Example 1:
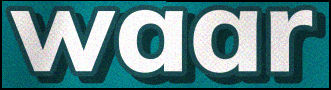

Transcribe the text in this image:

waar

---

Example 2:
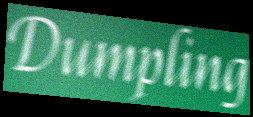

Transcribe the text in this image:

Dumpling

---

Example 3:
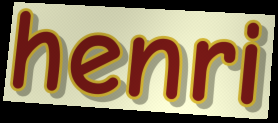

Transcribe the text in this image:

henri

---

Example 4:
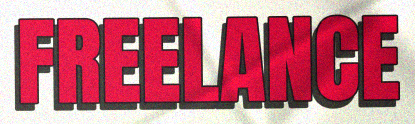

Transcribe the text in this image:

FREELANCE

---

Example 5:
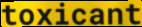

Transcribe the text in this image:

toxicant